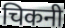
चिकनी